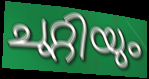
ചുറ്റിയും